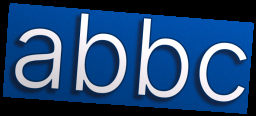
abbc